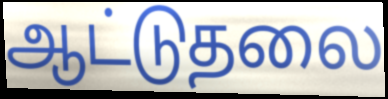
ஆட்டுதலை